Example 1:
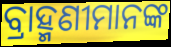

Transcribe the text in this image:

ବ୍ରାହ୍ମଣୀମାନଙ୍କ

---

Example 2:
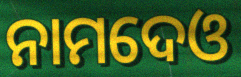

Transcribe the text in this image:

ନାମଦେଓ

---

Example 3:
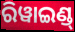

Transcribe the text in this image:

ରିୱାଇଣ୍ଡ୍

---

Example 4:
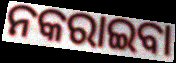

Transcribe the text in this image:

ନକରାଇବା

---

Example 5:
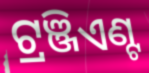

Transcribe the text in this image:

ଟ୍ରଞ୍ଜିଏଣ୍ଟ